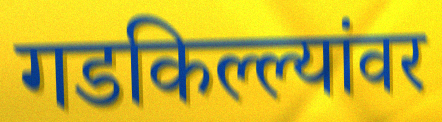
गडकिल्ल्यांवर